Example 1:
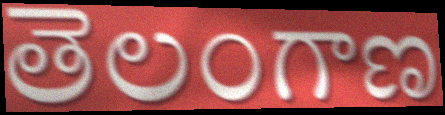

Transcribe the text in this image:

తెలంగాణ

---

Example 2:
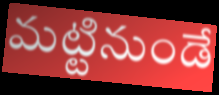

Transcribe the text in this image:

మట్టినుండే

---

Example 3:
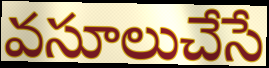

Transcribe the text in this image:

వసూలుచేసే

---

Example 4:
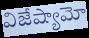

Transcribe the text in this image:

విజేష్యామో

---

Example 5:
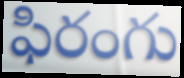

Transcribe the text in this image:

ఫిరంగు